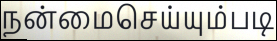
நன்மைசெய்யும்படி